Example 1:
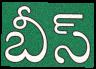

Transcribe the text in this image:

బీస్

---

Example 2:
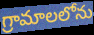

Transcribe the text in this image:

గ్రామాలలోను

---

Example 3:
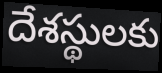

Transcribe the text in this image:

దేశస్థులకు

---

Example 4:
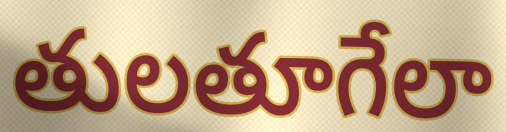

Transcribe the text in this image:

తులతూగేలా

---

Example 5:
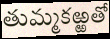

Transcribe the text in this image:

తుమ్మకఱ్ఱతో